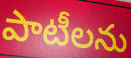
పాటీలను